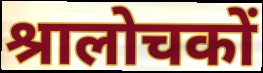
श्रालोचकों